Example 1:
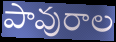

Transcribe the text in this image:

పావురాల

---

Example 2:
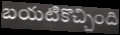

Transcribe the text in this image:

బయటికొచ్చింది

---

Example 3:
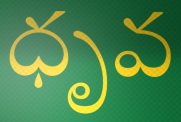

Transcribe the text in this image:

ధృవ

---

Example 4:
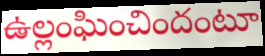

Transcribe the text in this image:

ఉల్లంఘించిందంటూ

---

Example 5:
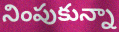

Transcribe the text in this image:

నింపుకున్నా